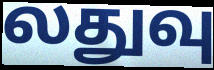
லதுவு